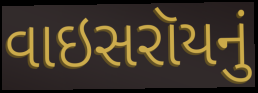
વાઇસરૉયનું